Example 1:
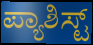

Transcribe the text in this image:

ಪ್ಯಾಶಿಸ್ಟ್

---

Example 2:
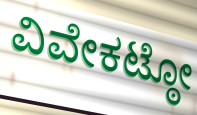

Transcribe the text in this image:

ವಿವೇಕಟ್ಠೋ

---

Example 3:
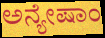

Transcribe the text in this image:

ಅನ್ಯೇಷಾಂ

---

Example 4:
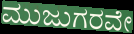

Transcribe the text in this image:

ಮುಜುಗರವೇ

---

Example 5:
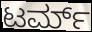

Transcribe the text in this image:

ಟರ್ಮ್